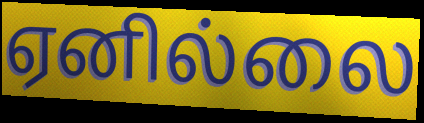
ஏனில்லை